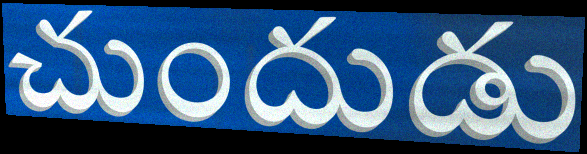
చుందుడు